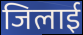
जिलाई